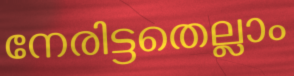
നേരിട്ടതെല്ലാം